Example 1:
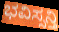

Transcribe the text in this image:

ಭವಿಸ್ಸನ್ತಿ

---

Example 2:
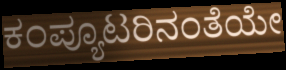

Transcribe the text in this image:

ಕಂಪ್ಯೂಟರಿನಂತೆಯೇ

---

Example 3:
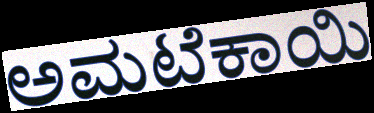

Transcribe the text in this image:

ಅಮಟೆಕಾಯಿ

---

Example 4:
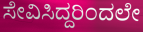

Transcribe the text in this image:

ಸೇವಿಸಿದ್ದರಿಂದಲೇ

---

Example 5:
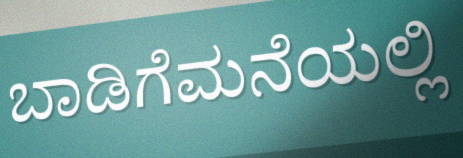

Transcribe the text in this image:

ಬಾಡಿಗೆಮನೆಯಲ್ಲಿ